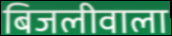
बिजलीवाला